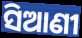
ସିଆଣୀ